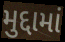
મુદ્દામાં